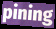
pining